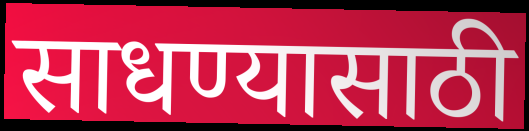
साधण्यासाठी